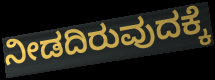
ನೀಡದಿರುವುದಕ್ಕೆ